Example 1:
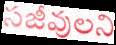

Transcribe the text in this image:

సజీవులని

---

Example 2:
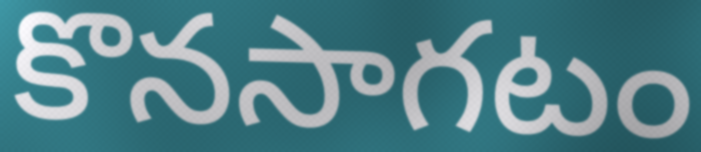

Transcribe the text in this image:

కొనసాగటం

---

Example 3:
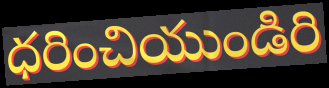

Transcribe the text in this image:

ధరించియుండిరి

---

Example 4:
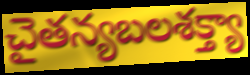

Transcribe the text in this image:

చైతన్యబలశక్త్యా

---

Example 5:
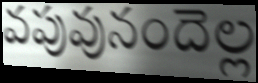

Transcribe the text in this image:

వపువునందెల్ల